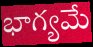
భాగ్యమే